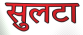
सुलटा